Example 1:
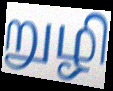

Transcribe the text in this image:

றுழி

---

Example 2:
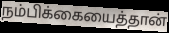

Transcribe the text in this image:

நம்பிக்கையைத்தான்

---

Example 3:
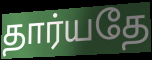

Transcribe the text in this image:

தார்யதே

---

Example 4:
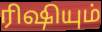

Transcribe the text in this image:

ரிஷியும்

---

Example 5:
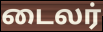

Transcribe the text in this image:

டைலர்